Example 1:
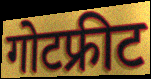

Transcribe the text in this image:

गोटफ्रीट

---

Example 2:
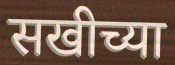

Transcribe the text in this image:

सखीच्या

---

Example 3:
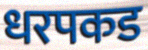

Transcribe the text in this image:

धरपकड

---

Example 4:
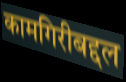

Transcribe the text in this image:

कामगिरीबद्दल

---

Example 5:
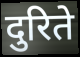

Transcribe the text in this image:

दुरिते